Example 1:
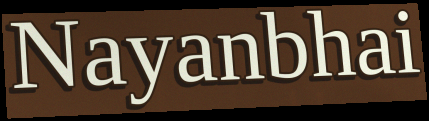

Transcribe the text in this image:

Nayanbhai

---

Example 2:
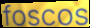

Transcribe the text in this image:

foscos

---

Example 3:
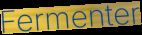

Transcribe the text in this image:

Fermenter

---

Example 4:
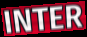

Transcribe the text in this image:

INTER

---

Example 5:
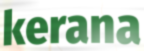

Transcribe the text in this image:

kerana